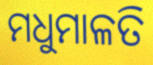
ମଧୁମାଳତି